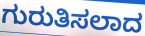
ಗುರುತಿಸಲಾದ